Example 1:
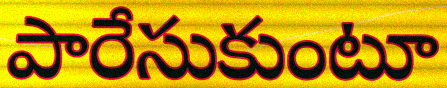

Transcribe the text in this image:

పారేసుకుంటూ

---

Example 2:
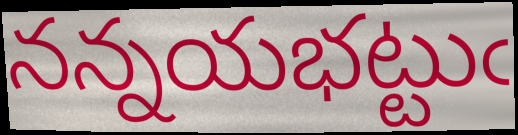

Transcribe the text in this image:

నన్నయభట్టుఁ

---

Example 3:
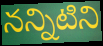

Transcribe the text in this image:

నన్నిటిని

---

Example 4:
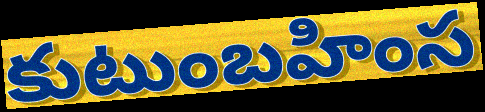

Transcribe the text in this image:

కుటుంబహింస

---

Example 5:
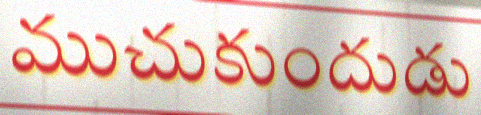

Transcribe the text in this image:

ముచుకుందుడు